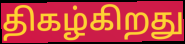
திகழ்கிறது